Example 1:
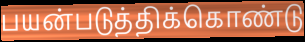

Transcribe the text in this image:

பயன்படுத்திக்கொண்டு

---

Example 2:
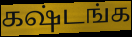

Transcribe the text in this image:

கஷ்டங்க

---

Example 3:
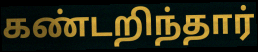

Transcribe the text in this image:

கண்டறிந்தார்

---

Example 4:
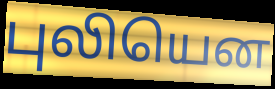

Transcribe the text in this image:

புலியென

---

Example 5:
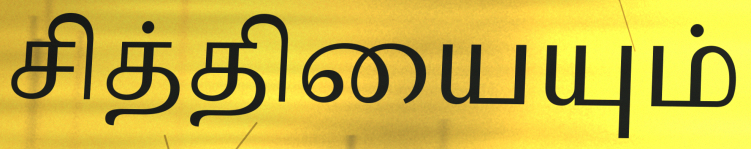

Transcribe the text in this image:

சித்தியையும்